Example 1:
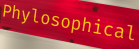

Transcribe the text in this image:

Phylosophical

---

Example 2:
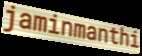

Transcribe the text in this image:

jaminmanthi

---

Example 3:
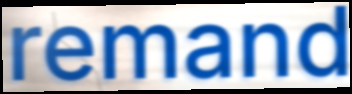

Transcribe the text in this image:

remand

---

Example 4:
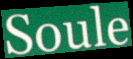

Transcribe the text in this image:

Soule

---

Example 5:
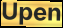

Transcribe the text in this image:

Upen